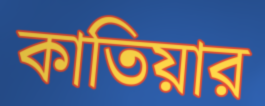
কাতিয়ার